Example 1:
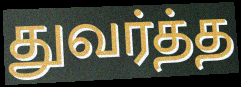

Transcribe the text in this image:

துவர்த்த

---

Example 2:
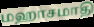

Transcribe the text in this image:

மஹாசமாதி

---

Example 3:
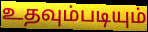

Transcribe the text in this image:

உதவும்படியும்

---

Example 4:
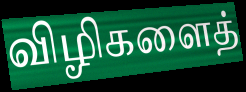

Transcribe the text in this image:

விழிகளைத்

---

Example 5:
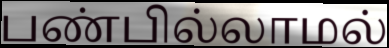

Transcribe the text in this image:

பண்பில்லாமல்